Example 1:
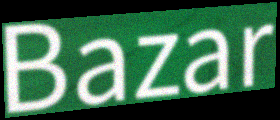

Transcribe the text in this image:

Bazar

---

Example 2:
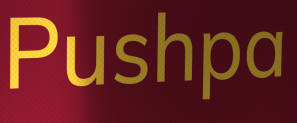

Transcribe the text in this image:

Pushpa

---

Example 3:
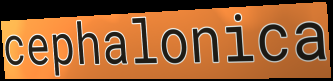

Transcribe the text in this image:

cephalonica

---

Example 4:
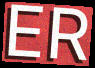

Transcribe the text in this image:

ER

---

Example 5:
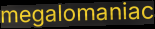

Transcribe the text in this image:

megalomaniac